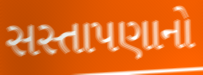
સસ્તાપણાનો